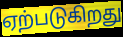
ஏற்படுகிறது